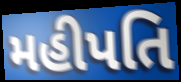
મહીપતિ